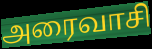
அரைவாசி